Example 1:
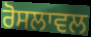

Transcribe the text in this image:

ਰੋਸਲਾਵਲ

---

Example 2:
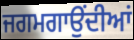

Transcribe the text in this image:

ਜਗਮਗਾਉਂਦੀਆਂ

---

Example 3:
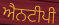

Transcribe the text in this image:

ਐਨਟੀਪੀ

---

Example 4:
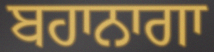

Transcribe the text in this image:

ਬਹਾਨਾਗਾ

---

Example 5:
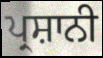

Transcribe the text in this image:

ਪ੍ਰਸ਼ਾਨੀ